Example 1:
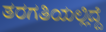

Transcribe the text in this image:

ತರಗತಿಯಲ್ಲಿದ್ದೆ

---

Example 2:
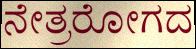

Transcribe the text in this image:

ನೇತ್ರರೋಗದ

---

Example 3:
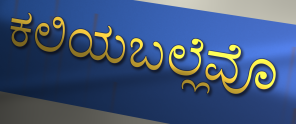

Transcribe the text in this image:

ಕಲಿಯಬಲ್ಲೆವೊ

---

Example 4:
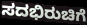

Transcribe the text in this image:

ಸದಭಿರುಚಿಗೆ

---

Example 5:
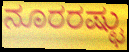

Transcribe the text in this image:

ನೂರರಷ್ಟು